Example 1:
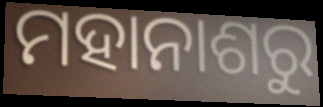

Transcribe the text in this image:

ମହାନାଶରୁ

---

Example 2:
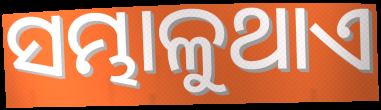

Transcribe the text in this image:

ସମ୍ଭାଳୁଥାଏ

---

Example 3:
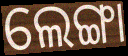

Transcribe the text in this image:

ଲେଙ୍ଗା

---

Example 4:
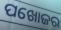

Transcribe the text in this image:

ପଖୋଜର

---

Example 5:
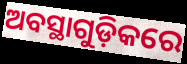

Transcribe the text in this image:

ଅବସ୍ଥାଗୁଡ଼ିକରେ